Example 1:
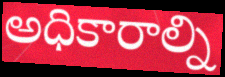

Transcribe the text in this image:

అధికారాల్ని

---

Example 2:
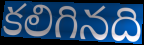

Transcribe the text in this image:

కలిగినది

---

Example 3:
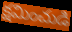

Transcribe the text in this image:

క్షమించుడి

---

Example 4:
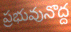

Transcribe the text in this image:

ప్రభువునొద్ద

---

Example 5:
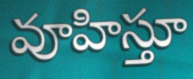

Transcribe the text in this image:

వూహిస్తూ